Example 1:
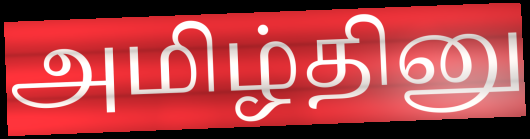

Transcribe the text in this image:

அமிழ்தினு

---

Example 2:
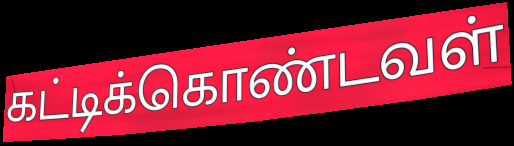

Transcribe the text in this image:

கட்டிக்கொண்டவள்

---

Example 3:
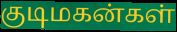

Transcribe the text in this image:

குடிமகன்கள்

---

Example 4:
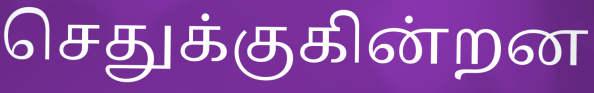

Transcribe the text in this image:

செதுக்குகின்றன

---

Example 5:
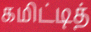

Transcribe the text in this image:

கமிட்டித்